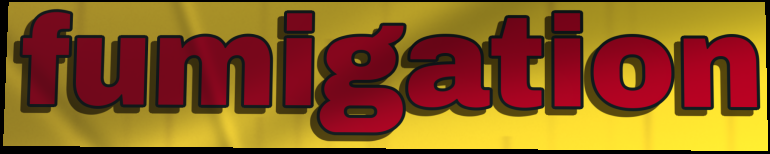
fumigation